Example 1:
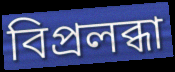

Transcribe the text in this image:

বিপ্রলব্ধা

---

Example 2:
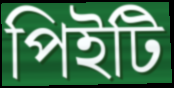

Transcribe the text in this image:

পিইটি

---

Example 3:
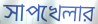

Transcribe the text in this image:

সাপখেলার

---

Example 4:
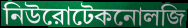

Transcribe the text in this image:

নিউরোটেকনোলজি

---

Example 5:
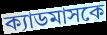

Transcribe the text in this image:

ক্যাডমাসকে